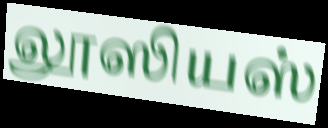
லூஸியஸ்